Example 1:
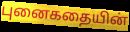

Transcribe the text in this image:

புனைகதையின்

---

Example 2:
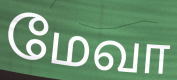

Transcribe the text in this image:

மேவா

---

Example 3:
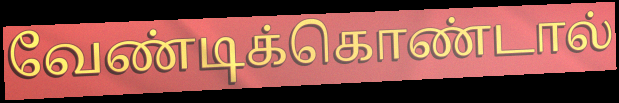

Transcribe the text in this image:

வேண்டிக்கொண்டால்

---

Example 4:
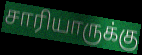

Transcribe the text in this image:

சாரியாருக்கு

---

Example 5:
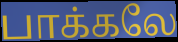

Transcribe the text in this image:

பாக்கலே